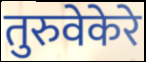
तुरुवेकेरे